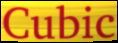
Cubic